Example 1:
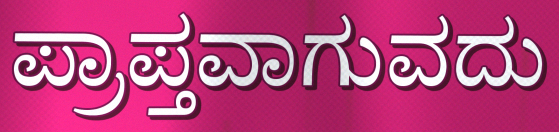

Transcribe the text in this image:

ಪ್ರಾಪ್ತವಾಗುವದು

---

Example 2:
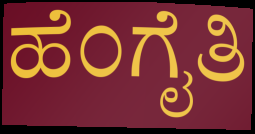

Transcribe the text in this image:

ಹೆಂಗೈತಿ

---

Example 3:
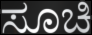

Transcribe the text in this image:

ಸೂಚಿ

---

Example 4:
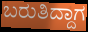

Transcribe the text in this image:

ಬರುತಿದ್ದಾಗ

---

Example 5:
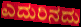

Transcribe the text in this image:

ಎದುರಿನದು